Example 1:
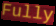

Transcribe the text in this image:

Fully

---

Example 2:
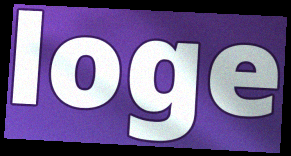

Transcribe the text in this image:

loge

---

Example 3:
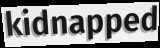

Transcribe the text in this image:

kidnapped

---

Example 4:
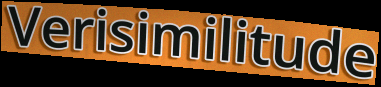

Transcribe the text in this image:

Verisimilitude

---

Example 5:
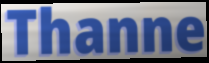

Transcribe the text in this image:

Thanne